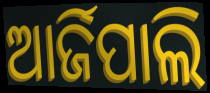
ଆର୍ଜିପାଲି